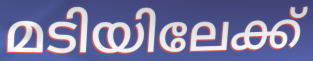
മടിയിലേക്ക്